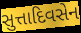
સુત્તાદિવસેન